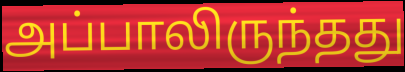
அப்பாலிருந்தது